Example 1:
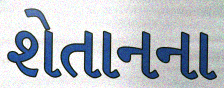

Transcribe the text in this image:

શેતાનના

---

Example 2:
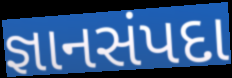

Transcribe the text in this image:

જ્ઞાનસંપદા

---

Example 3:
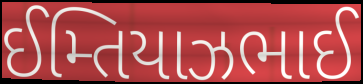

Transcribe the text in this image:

ઈમ્તિયાઝભાઈ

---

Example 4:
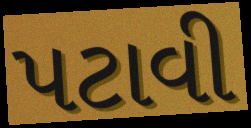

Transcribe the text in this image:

પટાવી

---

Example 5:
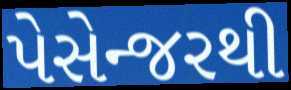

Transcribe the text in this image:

પેસેન્જરથી